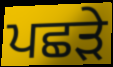
ਪਛੜੇ